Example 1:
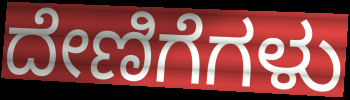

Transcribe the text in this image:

ದೇಣಿಗೆಗಳು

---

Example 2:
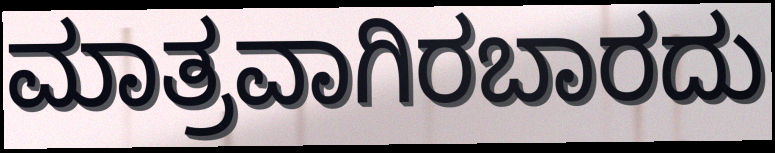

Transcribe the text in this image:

ಮಾತ್ರವಾಗಿರಬಾರದು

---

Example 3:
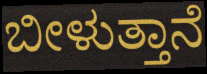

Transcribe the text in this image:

ಬೀಳುತ್ತಾನೆ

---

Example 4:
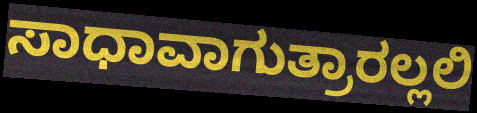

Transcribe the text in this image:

ಸಾಧಾವಾಗುತ್ರಾರಲ್ಲಲಿ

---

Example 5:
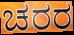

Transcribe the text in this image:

ಚರರ